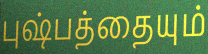
புஷ்பத்தையும்